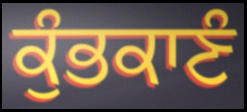
ਕੁੰਭਕਾਣੰ